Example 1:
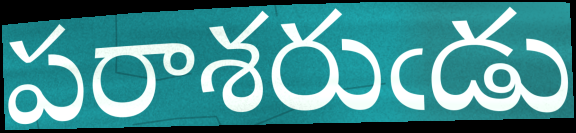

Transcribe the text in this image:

పరాశరుఁడు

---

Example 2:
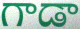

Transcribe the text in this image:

గాడా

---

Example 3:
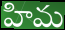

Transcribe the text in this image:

హిమ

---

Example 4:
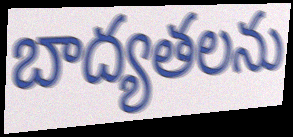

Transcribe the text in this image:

బాద్యతలను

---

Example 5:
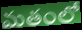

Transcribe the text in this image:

మతంలో